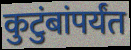
कुटुंबांपर्यंत